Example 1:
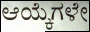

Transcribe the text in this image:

ಆಯ್ಕೆಗಳೇ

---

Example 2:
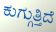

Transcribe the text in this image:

ಕುಗ್ಗುತ್ತಿದೆ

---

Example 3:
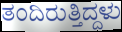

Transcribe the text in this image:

ತಂದಿರುತ್ತಿದ್ದಳು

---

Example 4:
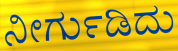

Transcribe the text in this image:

ನೀರ್ಗುಡಿದು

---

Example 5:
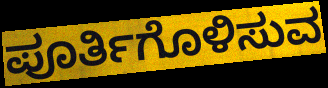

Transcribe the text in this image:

ಪೂರ್ತಿಗೊಳಿಸುವ